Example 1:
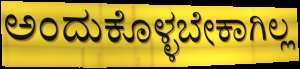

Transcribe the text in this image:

ಅಂದುಕೊಳ್ಳಬೇಕಾಗಿಲ್ಲ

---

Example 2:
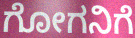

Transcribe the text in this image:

ಗೋಗನಿಗೆ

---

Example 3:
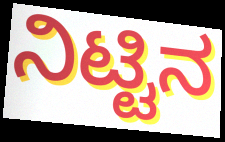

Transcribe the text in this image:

ನಿಟ್ಟಿನ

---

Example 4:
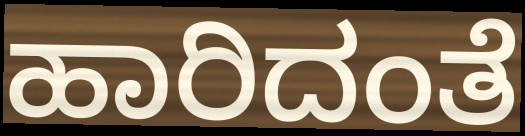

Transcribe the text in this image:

ಹಾರಿದಂತೆ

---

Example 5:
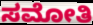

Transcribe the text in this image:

ಸಮೋತಿ